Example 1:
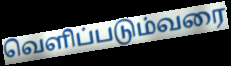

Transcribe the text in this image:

வெளிப்படும்வரை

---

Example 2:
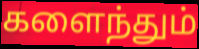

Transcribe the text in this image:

களைந்தும்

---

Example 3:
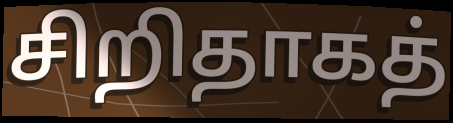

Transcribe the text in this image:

சிறிதாகத்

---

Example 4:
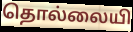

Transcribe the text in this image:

தொல்லையி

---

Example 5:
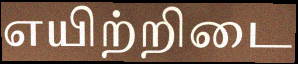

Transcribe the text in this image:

எயிற்றிடை